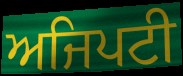
ਅਜਿਪਟੀ